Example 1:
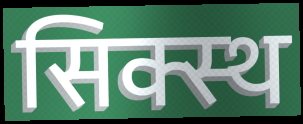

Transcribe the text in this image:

सिक्स्थ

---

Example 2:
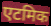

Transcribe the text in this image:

एटमिक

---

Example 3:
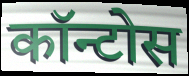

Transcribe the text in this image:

कॉन्टोस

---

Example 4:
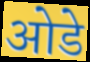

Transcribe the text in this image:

ओडे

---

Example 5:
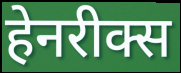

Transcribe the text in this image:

हेनरीक्स